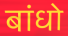
बांधो